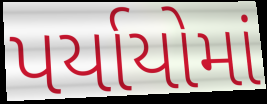
પર્યાયોમાં